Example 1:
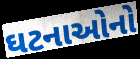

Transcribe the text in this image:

ઘટનાઓનો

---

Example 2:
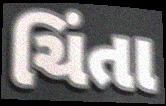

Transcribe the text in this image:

ચિંતા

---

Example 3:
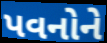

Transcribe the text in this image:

પવનોને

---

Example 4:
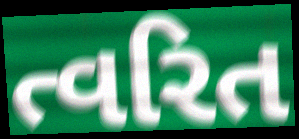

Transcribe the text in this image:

ત્વરિત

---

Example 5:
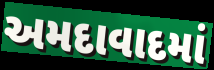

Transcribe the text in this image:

અમદાવાદમાં